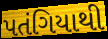
પતંગિયાથી